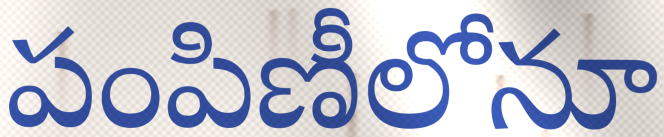
పంపిణీలోనూ